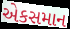
એકસમાન